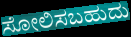
ಸೋಲಿಸಬಹುದು